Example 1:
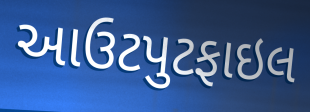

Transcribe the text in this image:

આઉટપુટફાઇલ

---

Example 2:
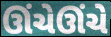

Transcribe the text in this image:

ઊંચેઊંચે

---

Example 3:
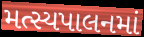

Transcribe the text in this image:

મત્સ્યપાલનમાં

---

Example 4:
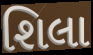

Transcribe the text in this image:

શિલા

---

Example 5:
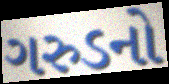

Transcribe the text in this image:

ગરુડનો